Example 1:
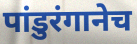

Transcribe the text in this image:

पांडुरंगानेच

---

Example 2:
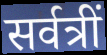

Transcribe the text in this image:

सर्वत्रीं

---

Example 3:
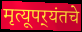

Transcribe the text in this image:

मृत्यूपर्यंतचे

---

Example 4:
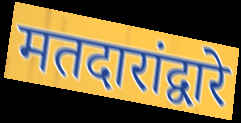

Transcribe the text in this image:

मतदारांद्वारे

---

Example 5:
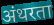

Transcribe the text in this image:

अंथरता